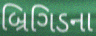
બ્રિગિડના